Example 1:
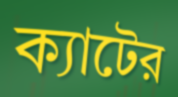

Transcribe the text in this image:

ক্যাটের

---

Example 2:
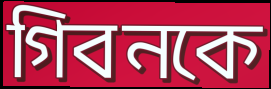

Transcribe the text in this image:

গিবনকে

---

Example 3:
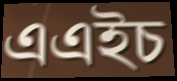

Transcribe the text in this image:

এএইচ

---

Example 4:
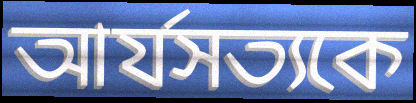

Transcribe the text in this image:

আর্যসত্যকে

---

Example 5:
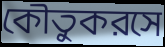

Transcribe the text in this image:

কৌতুকরসে